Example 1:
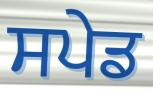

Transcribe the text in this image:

ਸਪੇਡ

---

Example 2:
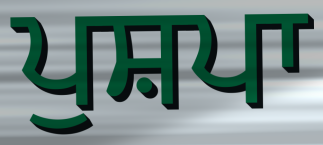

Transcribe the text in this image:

ਪੁਸ਼ਪਾ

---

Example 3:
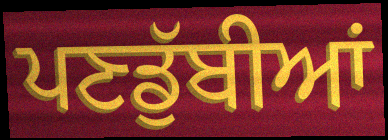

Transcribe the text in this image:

ਪਣਡੁੱਬੀਆਂ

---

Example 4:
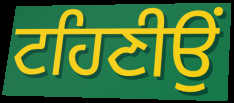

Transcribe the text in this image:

ਟਹਿਣੀਉਂ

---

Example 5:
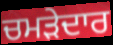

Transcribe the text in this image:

ਚਮੜੇਦਾਰ